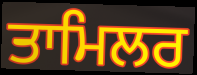
ਤਾਮਿਲਰ